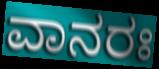
ವಾನರಃ